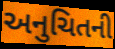
અનુચિતની